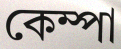
কেম্পা